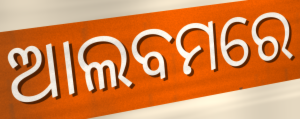
ଆଲବମରେ